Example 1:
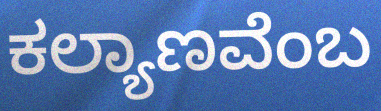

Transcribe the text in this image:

ಕಲ್ಯಾಣವೆಂಬ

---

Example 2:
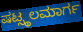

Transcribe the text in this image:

ಷಟ್ಸ್ಥಲಮಾರ್ಗ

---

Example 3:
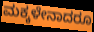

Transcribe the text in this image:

ಮಕ್ಕಳೇನಾದರೂ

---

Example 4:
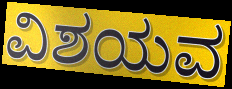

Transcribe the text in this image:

ವಿಶಯವ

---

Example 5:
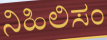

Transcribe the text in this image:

ನಿಹಿಲಿಸಂ